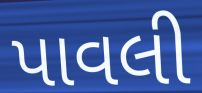
પાવલી